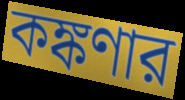
কঙ্কণার